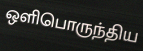
ஒளிபொருந்திய